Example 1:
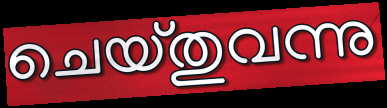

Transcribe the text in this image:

ചെയ്തുവന്നു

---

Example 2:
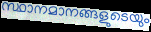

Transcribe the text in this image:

സ്ഥാനമാനങ്ങളുടെയും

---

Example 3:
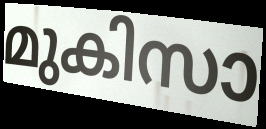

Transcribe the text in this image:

മുകിസാ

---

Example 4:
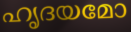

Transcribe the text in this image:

ഹൃദയമോ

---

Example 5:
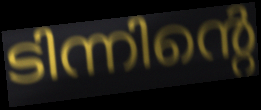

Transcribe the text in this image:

ടിന്നിന്റെ